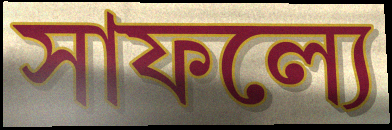
সাফল্যে